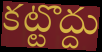
కట్టొద్దు